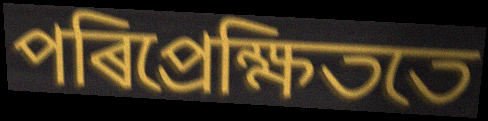
পৰিপ্ৰেক্ষিততে